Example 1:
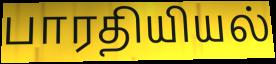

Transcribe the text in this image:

பாரதியியல்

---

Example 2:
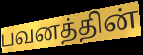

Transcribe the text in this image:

பவனத்தின்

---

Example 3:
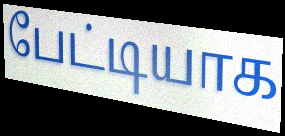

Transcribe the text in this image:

பேட்டியாக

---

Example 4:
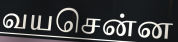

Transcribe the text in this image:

வயசென்ன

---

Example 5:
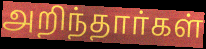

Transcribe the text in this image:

அறிந்தார்கள்